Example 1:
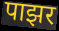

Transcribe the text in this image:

पाझर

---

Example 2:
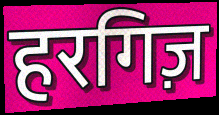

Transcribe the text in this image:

हरगिज़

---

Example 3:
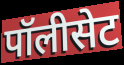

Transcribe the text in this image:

पॉलीसेट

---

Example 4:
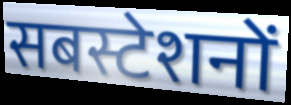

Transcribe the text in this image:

सबस्टेशनों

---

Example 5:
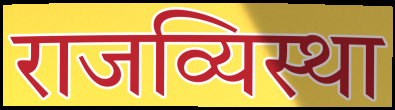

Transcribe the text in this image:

राजव्यिस्था